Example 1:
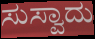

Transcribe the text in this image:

ಸುಸ್ವಾದು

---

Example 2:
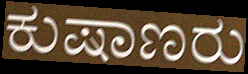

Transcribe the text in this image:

ಕುಷಾಣರು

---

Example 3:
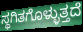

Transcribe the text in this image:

ಸ್ಥಗಿತಗೊಳ್ಳುತ್ತದೆ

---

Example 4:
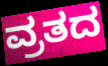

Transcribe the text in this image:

ವ್ರತದ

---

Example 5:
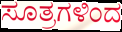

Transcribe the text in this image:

ಸೂತ್ರಗಳಿಂದ